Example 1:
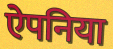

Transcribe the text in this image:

ऐपनिया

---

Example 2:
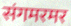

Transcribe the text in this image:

संगमरमर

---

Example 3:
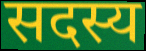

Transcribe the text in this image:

सदस्‍य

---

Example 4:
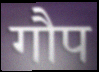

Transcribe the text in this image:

गौप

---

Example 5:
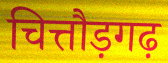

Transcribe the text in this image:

चित्तौड़गढ़